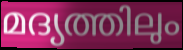
മദ്യത്തിലും